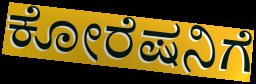
ಕೋರೆಷನಿಗೆ